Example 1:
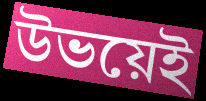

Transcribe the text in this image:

উভয়েই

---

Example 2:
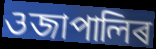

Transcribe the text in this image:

ওজাপালিৰ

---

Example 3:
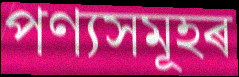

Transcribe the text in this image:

পণ্যসমূহৰ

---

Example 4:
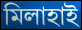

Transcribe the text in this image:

মিলাহাই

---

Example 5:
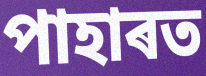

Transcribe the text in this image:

পাহাৰত